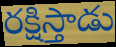
రక్షిస్తాడు